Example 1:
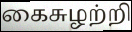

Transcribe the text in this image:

கைசுழற்றி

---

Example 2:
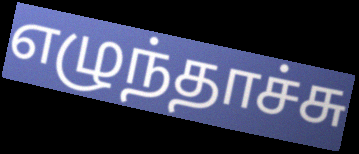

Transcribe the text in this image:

எழுந்தாச்சு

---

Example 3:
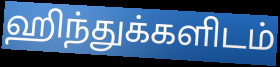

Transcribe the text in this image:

ஹிந்துக்களிடம்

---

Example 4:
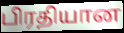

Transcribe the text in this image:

பிரதியான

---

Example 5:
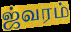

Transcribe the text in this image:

ஜ்வரம்